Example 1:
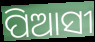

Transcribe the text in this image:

ପିଆସୀ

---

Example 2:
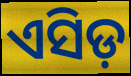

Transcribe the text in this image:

ଏସିଡ଼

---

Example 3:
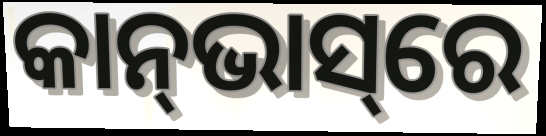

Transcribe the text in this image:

କାନ୍‌ଭାସ୍‌ରେ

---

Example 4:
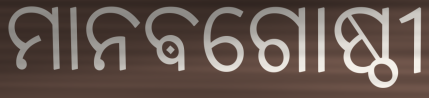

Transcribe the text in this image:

ମାନଵଗୋଷ୍ଠୀ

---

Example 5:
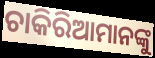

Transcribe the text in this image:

ଚାକିରିଆମାନଙ୍କୁ